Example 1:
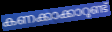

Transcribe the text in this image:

കണക്കാക്കാറുണ്ട്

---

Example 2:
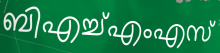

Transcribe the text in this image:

ബിഎച്ച്എംഎസ്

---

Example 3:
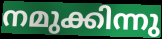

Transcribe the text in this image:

നമുക്കിന്നു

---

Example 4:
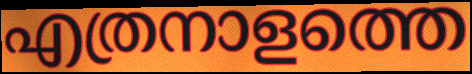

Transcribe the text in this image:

എത്രനാളത്തെ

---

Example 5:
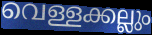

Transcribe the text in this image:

വെള്ളക്കല്ലും